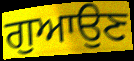
ਗੁਆਉਣ